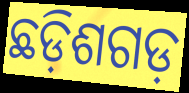
ଛଡ଼ିଶଗଡ଼